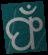
ଫଁ